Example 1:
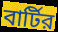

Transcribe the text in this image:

বার্টির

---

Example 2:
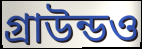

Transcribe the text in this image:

গ্রাউন্ডও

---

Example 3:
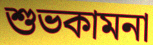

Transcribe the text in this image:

শুভকামনা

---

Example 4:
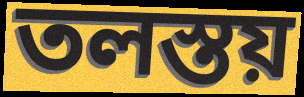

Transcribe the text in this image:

তলস্তয়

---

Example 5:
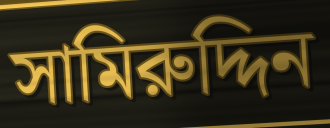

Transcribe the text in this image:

সামিরুদ্দিন